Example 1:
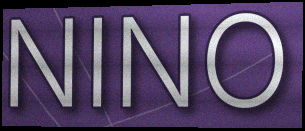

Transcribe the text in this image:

NINO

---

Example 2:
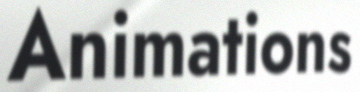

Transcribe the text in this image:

Animations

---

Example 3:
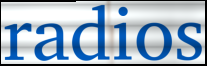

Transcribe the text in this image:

radios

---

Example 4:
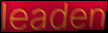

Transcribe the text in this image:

leaden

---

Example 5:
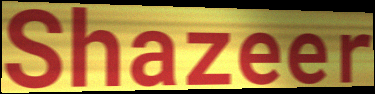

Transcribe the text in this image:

Shazeer